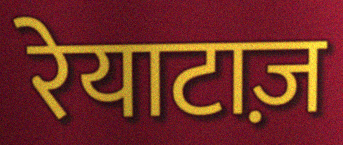
रेयाटाज़